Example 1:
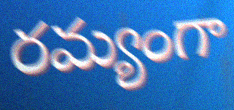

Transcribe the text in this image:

రమ్యంగా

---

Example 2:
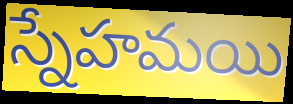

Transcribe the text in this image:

స్నేహమయి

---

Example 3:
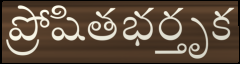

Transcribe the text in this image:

ప్రోషితభర్తృక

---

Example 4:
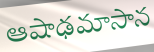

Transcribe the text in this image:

ఆషాఢమాసాన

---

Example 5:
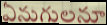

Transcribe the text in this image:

ఏనుగులనూ